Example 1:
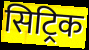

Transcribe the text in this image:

सिट्रिक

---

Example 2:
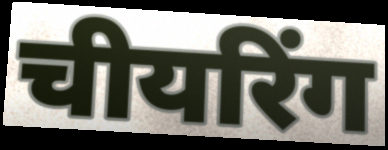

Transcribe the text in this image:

चीयरिंग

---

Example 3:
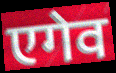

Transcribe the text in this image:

एगेव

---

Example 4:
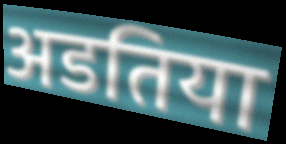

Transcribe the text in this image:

अडतिया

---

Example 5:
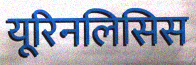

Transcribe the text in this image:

यूरिनलिसिस